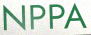
NPPA